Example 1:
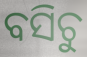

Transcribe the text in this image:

ବସିଚୁ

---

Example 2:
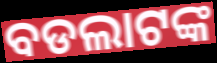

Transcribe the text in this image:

ବଡଲାଟଙ୍କ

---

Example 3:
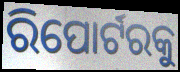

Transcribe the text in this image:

ରିପୋର୍ଟରକୁ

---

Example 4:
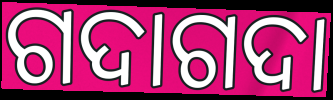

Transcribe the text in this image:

ଗଦାଗଦା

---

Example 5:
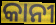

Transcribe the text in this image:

କାନୀ